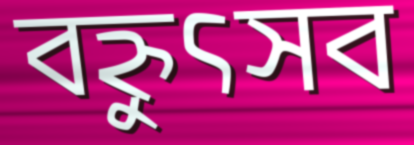
বহ্নুৎসব